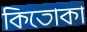
কিতোকা